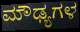
ಮೌಢ್ಯಗಳ